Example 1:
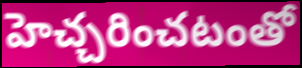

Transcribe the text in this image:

హెచ్చరించటంతో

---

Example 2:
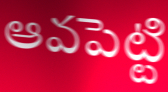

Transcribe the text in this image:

ఆవపెట్టి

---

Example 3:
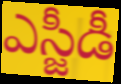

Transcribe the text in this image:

ఎస్జీడీ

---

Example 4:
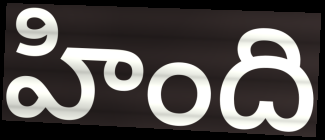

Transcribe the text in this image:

హింది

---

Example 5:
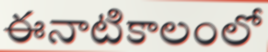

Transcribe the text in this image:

ఈనాటికాలంలో